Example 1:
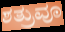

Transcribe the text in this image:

ಶತ್ರುವೂ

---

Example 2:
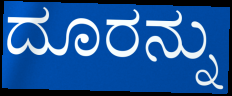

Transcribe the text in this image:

ದೂರನ್ನು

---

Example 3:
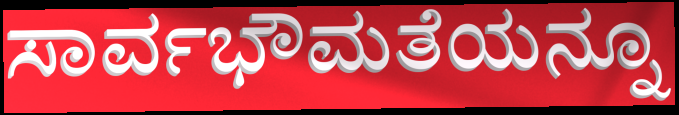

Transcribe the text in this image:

ಸಾರ್ವಭೌಮತೆಯನ್ನೂ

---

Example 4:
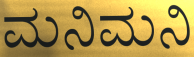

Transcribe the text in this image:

ಮನಿಮನಿ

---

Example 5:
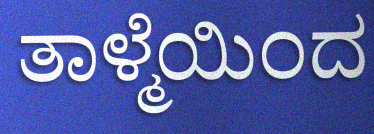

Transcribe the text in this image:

ತಾಳ್ಮೆಯಿಂದ